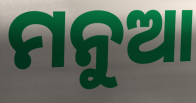
ମନୁଆ